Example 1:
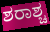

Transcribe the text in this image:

ಶರಾಶ್ಚ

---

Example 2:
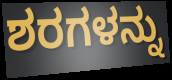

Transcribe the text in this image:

ಶರಗಳನ್ನು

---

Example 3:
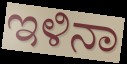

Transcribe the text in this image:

ಇಳಿನಾ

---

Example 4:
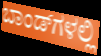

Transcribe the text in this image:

ಬಾಂಡ್‌ಗಳಲ್ಲಿ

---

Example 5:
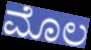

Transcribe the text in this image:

ಮೊಲ